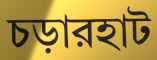
চড়ারহাট